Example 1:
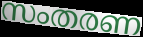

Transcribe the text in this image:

സംതരണ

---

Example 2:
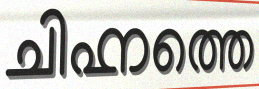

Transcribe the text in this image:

ചിഹ്നത്തെ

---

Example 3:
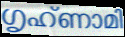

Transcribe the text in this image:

ഗൃഹ്ണാമി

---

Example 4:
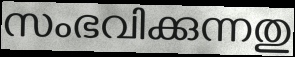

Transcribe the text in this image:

സംഭവിക്കുന്നതു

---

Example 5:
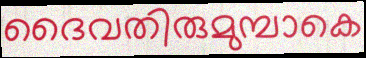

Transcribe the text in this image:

ദൈവതിരുമുമ്പാകെ